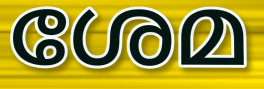
ശേമ